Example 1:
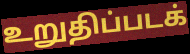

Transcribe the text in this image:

உறுதிப்படக்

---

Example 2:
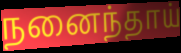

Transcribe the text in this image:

நனைந்தாய்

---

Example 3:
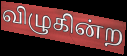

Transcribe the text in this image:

விழுகின்ற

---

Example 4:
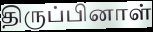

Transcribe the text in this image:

திருப்பினாள்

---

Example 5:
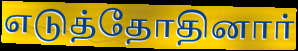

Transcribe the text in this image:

எடுத்தோதினார்